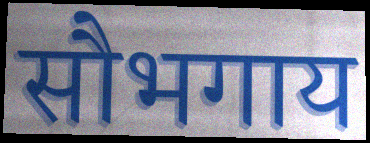
सौभगाय